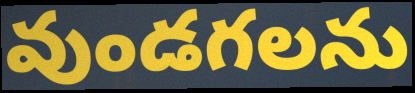
వుండగలను